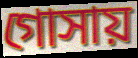
গোসায়